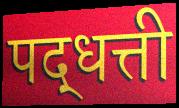
पद्धत्ती